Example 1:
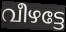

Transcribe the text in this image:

വീഴട്ടേ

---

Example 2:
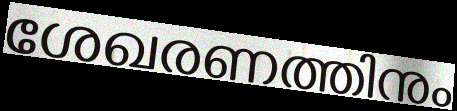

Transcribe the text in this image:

ശേഖരണത്തിനും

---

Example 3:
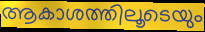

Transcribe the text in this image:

ആകാശത്തിലൂടെയും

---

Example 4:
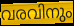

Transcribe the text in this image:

വരവിനും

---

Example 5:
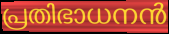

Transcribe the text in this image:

പ്രതിഭാധനൻ